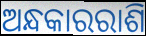
ଅନ୍ଧକାରରାଶି